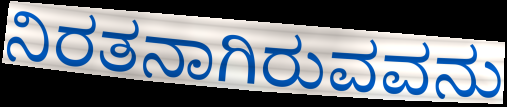
ನಿರತನಾಗಿರುವವನು